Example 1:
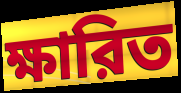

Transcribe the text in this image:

ক্ষারিত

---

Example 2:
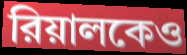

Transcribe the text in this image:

রিয়ালকেও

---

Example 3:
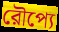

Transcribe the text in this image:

রৌপ্যে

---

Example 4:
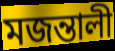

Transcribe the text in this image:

মজন্তালী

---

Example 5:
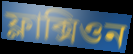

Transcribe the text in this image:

ফ্লাক্সিওন